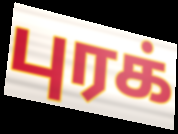
புரக்